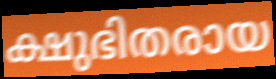
ക്ഷുഭിതരായ